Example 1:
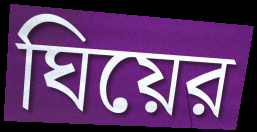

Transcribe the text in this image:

ঘিয়ের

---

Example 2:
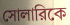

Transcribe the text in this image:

সোলারিকে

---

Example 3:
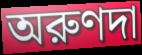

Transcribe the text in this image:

অরুণদা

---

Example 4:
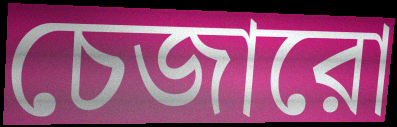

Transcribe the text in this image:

চেজারো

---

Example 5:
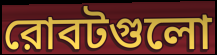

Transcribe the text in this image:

রোবটগুলো